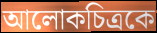
আলোকচিত্রকে